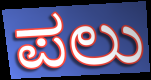
ಪಲು